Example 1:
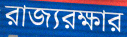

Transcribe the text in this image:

রাজ্যরক্ষার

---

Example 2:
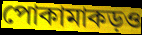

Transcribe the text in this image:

পোকামাকড়ও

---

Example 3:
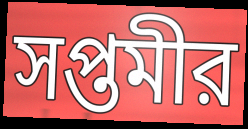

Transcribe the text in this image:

সপ্তমীর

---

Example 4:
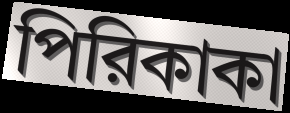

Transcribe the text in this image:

পিরিকাকা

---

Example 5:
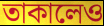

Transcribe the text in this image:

তাকালেও